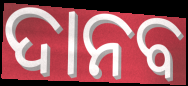
ଦାନବ